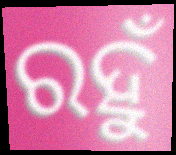
ରହୁଁ